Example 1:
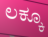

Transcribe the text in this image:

ಲಕ್ಕೂ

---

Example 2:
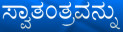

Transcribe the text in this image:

ಸ್ವಾತಂತ್ರವನ್ನು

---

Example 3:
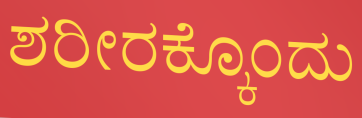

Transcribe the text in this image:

ಶರೀರಕ್ಕೊಂದು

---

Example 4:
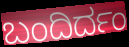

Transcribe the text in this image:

ಬಂದಿರ್ದಂ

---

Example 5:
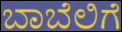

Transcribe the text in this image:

ಬಾಬೆಲಿಗೆ